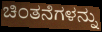
ಚಿಂತನೆಗಳನ್ನು